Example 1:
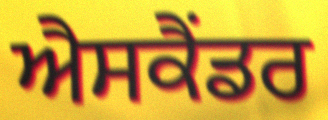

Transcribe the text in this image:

ਐਸਕੈਂਡਰ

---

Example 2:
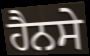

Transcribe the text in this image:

ਹੈਨਸੇ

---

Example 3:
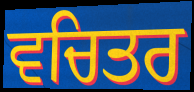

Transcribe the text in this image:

ਵਚਿਤਰ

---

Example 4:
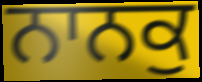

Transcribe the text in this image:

ਨਾਨਕੁ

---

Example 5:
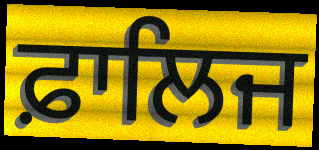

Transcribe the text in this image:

ਫ਼ਾਲਿਜ